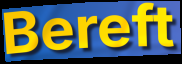
Bereft